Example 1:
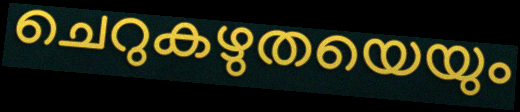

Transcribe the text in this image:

ചെറുകഴുതയെയും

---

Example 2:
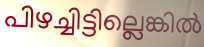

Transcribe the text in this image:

പിഴച്ചിട്ടില്ലെങ്കിൽ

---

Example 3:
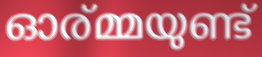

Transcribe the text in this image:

ഓര്മ്മയുണ്ട്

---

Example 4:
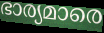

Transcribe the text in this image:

ഭാര്യമാരെ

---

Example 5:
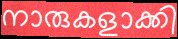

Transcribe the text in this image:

നാരുകളാക്കി